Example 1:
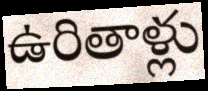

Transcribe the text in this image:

ఉరితాళ్లు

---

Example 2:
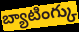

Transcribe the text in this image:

బ్యాటింగ్కు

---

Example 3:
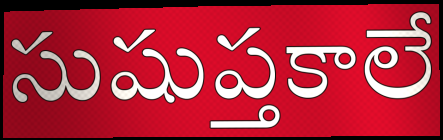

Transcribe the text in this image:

సుషుప్తకాలే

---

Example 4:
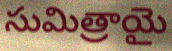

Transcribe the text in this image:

సుమిత్రాయై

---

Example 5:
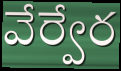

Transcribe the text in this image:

వేర్వేర